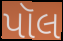
પૉલ